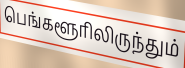
பெங்களூரிலிருந்தும்